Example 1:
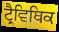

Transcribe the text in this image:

ਟ੍ਰੈਵਿਥਿਕ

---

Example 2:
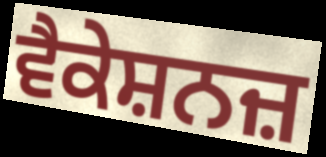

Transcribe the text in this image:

ਵੈਕੇਸ਼ਨਜ਼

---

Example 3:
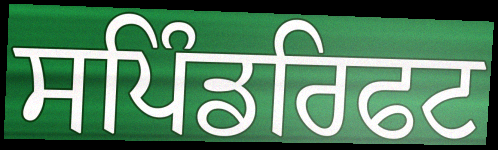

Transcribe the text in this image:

ਸਪਿੰਡਰਿਫਟ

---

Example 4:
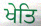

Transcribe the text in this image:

ਖੇਤਿ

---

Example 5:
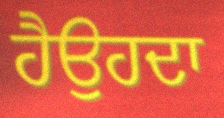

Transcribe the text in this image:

ਹੈਉਹਦਾ